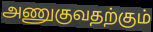
அணுகுவதற்கும்